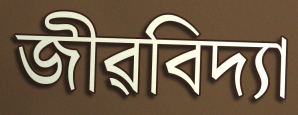
জীৱবিদ্যা